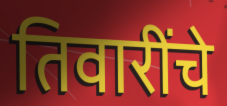
तिवारींचे